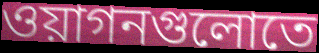
ওয়াগনগুলোতে